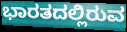
ಭಾರತದಲ್ಲಿರುವ